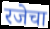
रजेचा